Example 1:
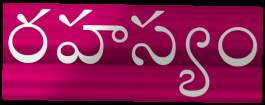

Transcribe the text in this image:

రహస్యం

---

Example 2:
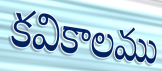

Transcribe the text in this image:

కవికాలము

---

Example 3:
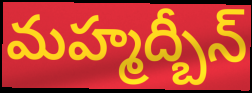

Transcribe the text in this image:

మహ్మద్బీన్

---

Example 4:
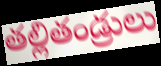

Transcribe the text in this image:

తల్లితండ్రులు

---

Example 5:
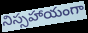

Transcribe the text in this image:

నిస్సహాయంగా